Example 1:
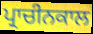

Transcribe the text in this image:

ਪ੍ਰਾਚੀਨਕਾਲ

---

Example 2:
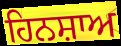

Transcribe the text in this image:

ਹਿਨਸ਼ਾਅ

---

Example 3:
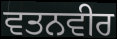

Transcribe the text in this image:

ਵਤਨਵੀਰ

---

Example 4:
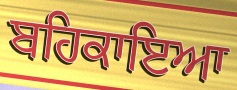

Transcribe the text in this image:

ਬਹਿਕਾਇਆ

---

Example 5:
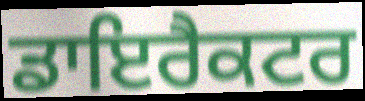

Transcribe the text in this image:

ਡਾਇਰੈਕਟਰ